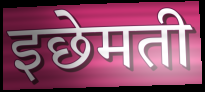
इछेमती